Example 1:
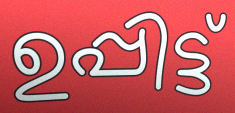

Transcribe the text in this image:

ഉപ്പിട്ട്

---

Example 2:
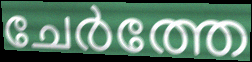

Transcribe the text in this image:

ചേർത്തേ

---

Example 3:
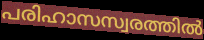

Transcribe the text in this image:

പരിഹാസസ്വരത്തിൽ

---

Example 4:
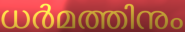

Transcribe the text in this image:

ധർമത്തിനും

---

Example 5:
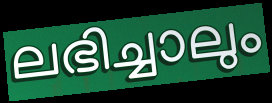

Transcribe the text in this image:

ലഭിച്ചാലും